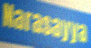
Narasayya